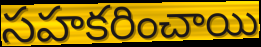
సహకరించాయి